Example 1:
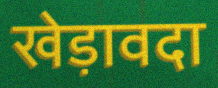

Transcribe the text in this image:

खेड़ावदा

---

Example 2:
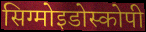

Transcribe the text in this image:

सिग्मोइडोस्कोपी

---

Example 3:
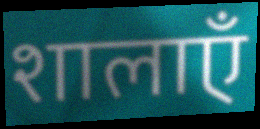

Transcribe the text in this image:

शालाएँ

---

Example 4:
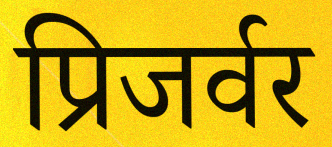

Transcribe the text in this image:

प्रिजर्वर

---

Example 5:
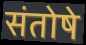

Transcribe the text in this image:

संतोषे